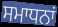
ਸਮਾਧਨਾਂ